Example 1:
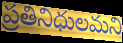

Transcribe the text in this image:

ప్రతినిధులమని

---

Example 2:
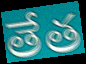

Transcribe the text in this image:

తేత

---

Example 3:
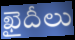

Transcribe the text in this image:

ఖైదీలు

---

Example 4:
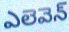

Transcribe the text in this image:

ఎలెవెన్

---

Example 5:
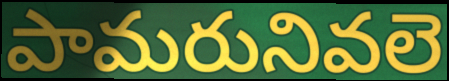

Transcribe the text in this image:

పామరునివలె